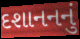
દશાનનનું